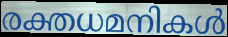
രക്തധമനികൾ